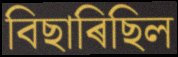
বিছাৰিছিল